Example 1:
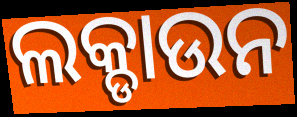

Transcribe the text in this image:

ଲକ୍ଡାଉନ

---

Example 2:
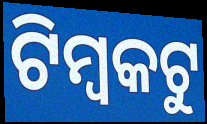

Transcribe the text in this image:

ଟିମ୍ବକଟୁ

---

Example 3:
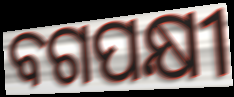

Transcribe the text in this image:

ବଗପକ୍ଷୀ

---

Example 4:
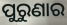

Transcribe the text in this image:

ପୁରୁଣାର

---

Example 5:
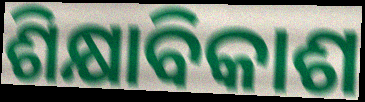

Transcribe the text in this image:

ଶିକ୍ଷାବିକାଶ